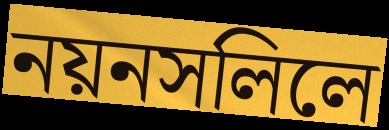
নয়নসলিলে